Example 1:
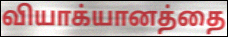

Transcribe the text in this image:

வியாக்யானத்தை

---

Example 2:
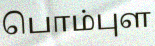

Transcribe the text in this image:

பொம்புள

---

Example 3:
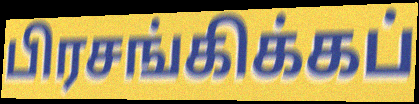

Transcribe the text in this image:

பிரசங்கிக்கப்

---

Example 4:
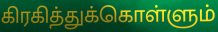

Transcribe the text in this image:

கிரகித்துக்கொள்ளும்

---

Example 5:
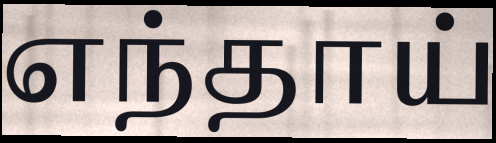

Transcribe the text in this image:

எந்தாய்